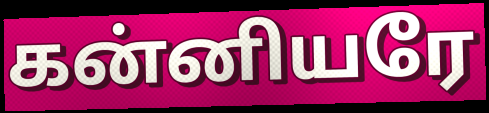
கன்னியரே